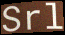
Srl